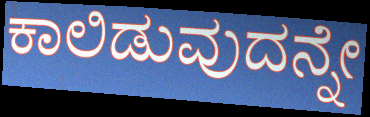
ಕಾಲಿಡುವುದನ್ನೇ